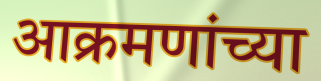
आक्रमणांच्या